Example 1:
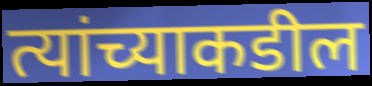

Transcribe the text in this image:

त्यांच्याकडील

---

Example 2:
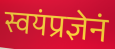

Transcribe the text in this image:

स्वयंप्रज्ञेनं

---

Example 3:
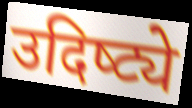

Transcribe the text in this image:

उदिष्ट्ये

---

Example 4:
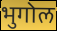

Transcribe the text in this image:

भुगोल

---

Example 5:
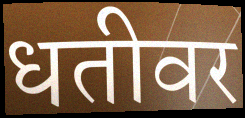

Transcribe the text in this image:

धतीवर